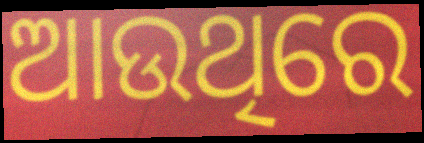
ଆଉଥିରେ